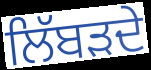
ਲਿੱਬੜਦੇ